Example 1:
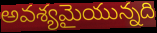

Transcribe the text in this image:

అవశ్యమైయున్నది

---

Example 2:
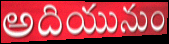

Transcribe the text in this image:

అదియునుం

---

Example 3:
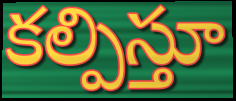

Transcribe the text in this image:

కల్పిస్తూ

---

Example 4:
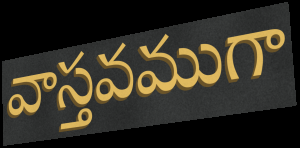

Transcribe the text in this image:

వాస్తవముగా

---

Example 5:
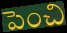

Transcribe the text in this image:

పెంచి